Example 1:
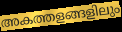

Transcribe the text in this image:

അകത്തളങ്ങളിലും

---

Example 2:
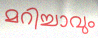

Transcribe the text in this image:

മറിച്ചാവും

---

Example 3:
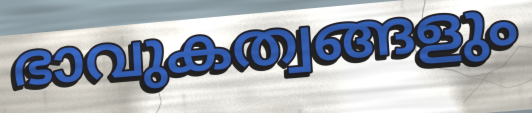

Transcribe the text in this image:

ഭാവുകത്വങ്ങളും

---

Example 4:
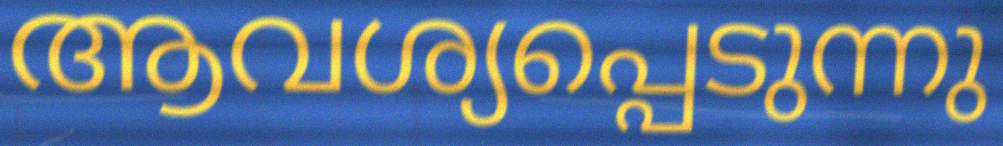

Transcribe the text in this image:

ആവശ്യപ്പെടുന്നു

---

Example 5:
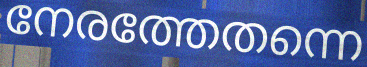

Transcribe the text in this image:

നേരത്തേതന്നെ